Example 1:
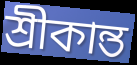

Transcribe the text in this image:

শ্রীকান্ত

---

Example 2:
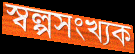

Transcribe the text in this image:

স্বল্পসংখ্যক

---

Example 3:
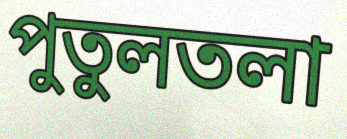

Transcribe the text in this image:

পুতুলতলা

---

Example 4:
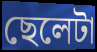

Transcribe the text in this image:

ছেলেটা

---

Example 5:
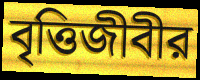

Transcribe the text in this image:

বৃত্তিজীবীর